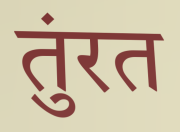
तुंरत